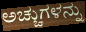
ಅಚ್ಚುಗಳನ್ನು